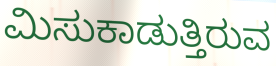
ಮಿಸುಕಾಡುತ್ತಿರುವ